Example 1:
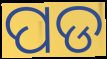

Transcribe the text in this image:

ପଡ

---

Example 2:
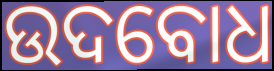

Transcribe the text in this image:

ଉଦବୋଧ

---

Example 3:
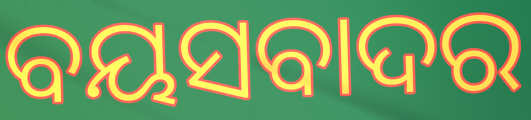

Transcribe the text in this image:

ବୟସବାଦର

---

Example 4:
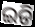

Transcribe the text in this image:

ଇଡି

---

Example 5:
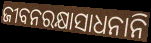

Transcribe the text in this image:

ଜୀବନରକ୍ଷାସାଧନାନି